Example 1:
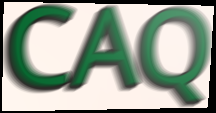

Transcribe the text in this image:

CAQ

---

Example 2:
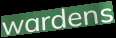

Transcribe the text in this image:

wardens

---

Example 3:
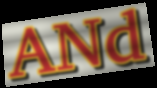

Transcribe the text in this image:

ANd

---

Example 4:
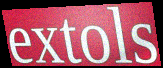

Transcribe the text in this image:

extols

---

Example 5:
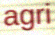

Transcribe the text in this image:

agri